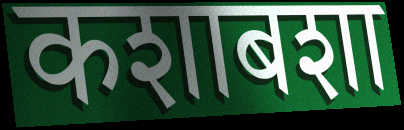
कशाबशा